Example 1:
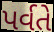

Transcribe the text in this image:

પર્વતે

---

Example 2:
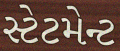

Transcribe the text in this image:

સ્ટેટમેન્ટ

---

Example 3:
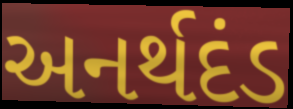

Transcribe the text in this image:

અનર્થદંડ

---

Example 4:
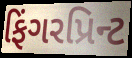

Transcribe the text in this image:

ફિંગરપ્રિન્ટ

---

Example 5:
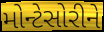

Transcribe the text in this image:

મોન્ટેસોરીને